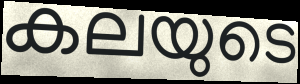
കലയുടെ